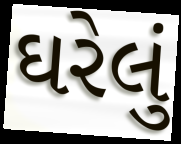
ઘરેલું